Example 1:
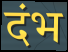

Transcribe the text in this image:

दंभ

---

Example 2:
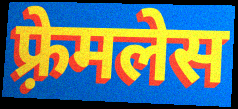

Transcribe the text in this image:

फ़्रेमलेस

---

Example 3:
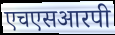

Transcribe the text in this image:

एचएसआरपी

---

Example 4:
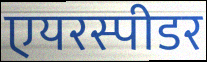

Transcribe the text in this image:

एयरस्पीडर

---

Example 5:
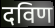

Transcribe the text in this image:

दविण